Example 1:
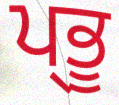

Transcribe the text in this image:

ਪ੍ਭੂ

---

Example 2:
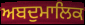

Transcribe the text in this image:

ਅਬਦੁਮਾਲਿਕ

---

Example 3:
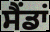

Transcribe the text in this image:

ਸੈਂਡਾਂ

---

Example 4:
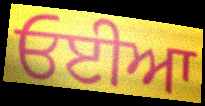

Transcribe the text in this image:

ਓਈਆ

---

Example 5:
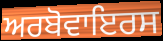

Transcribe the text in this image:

ਅਰਬੋਵਾਇਰਸ